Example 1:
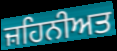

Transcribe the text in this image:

ਜ਼ਹਿਨੀਅਤ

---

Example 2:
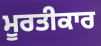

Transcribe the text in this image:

ਮੂਰਤੀਕਾਰ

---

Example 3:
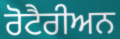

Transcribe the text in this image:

ਰੋਟੈਰੀਅਨ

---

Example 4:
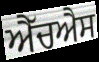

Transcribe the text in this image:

ਐੱਚਐਸ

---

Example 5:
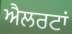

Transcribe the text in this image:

ਐਲਰਟਾਂ